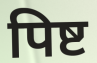
पिष्ट